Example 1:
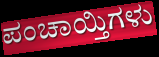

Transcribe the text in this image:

ಪಂಚಾಯ್ತಿಗಳು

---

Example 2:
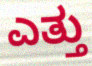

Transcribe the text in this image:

ಎತ್ತು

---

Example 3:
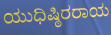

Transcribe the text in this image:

ಯುಧಿಷ್ಠಿರರಾಯ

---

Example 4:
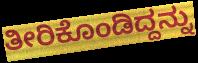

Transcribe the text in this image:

ತೀರಿಕೊಂಡಿದ್ದನ್ನು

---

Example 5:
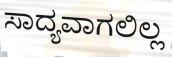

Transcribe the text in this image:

ಸಾದ್ಯವಾಗಲಿಲ್ಲ